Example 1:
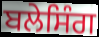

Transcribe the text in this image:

ਬਲੇਸਿੰਗ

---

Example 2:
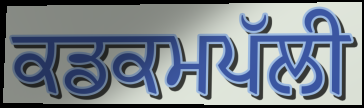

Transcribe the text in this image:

ਕਡਕਮਪੱਲੀ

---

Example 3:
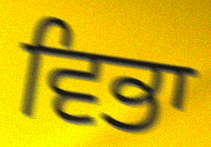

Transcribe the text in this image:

ਵਿਭਾ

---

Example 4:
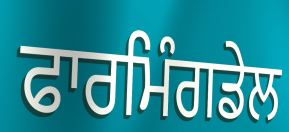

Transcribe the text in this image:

ਫਾਰਮਿੰਗਡੇਲ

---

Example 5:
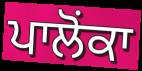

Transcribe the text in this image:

ਪਾਲੋਂਕਾ